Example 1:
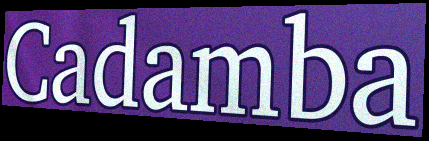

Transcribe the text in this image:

Cadamba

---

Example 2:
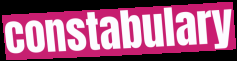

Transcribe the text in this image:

constabulary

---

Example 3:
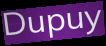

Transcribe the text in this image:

Dupuy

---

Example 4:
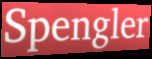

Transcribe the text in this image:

Spengler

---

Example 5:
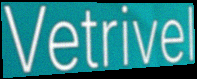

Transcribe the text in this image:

Vetrivel